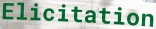
Elicitation